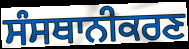
ਸੰਸਥਾਨੀਕਰਣ